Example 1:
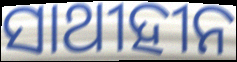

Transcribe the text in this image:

ସାଥୀହୀନ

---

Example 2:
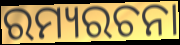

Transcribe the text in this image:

ରମ୍ୟରଚନା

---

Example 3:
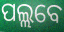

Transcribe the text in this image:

ପଲ୍ଲବେ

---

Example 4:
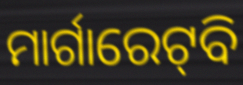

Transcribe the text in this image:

ମାର୍ଗାରେଟ୍‌ବି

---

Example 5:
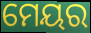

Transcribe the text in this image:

ମେୟର